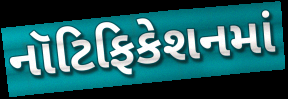
નૉટિફિકેશનમાં